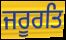
ਜਰੂਰਤਿ